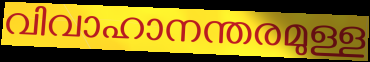
വിവാഹാനന്തരമുള്ള